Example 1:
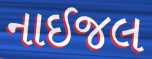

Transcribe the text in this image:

નાઈજલ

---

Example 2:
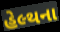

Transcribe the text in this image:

હેલ્થના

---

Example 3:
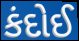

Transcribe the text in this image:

કંદોઈ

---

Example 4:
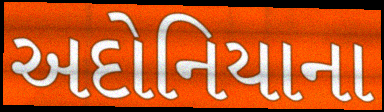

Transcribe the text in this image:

અદોનિયાના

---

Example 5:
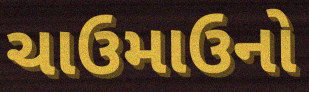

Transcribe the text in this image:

ચાઉમાઉનો